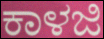
ಕಾಳಜಿ